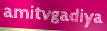
amitvgadiya